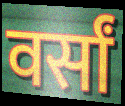
वर्सां